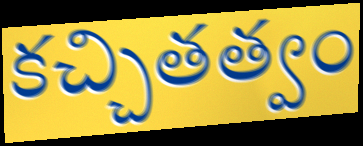
కచ్చితత్వం